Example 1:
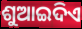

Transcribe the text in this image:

ଶୁଆଇଦିଏ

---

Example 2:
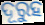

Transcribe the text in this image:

ଦୂରୁହ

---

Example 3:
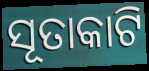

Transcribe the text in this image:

ସୂତାକାଟି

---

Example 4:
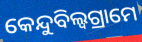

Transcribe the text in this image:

କେନ୍ଦୁବିଲ୍ଵଗ୍ରାମେ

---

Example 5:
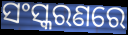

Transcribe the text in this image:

ସଂସ୍କରଣରେ